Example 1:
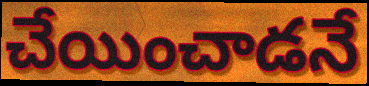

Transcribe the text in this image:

చేయించాడనే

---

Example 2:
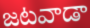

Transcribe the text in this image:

జటవాడా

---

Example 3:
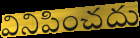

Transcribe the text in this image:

వినిపించదు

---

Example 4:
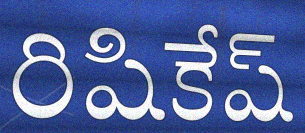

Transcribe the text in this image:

రిషికేష్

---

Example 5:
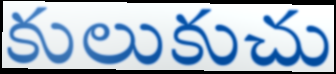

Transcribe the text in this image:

కులుకుచు